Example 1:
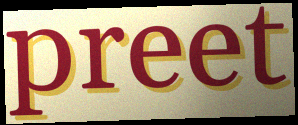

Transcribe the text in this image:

preet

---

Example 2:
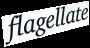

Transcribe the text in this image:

flagellate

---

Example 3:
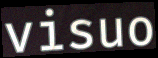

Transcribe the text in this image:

visuo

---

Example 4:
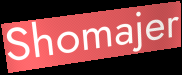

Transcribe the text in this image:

Shomajer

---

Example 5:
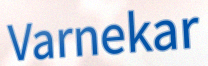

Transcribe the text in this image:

Varnekar